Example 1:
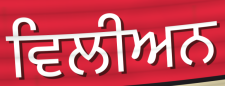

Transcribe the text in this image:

ਵਿਲੀਅਨ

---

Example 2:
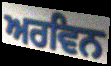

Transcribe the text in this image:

ਅਰਵਿਨ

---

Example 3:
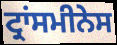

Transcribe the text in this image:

ਟ੍ਰਾਂਸਮੀਨੇਸ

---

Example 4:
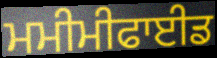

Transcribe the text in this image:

ਮਮੀਮੀਫਾਈਡ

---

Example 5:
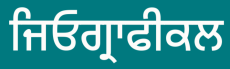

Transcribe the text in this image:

ਜਿਓਗ੍ਰਾਫੀਕਲ